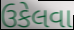
ઉકેલવા